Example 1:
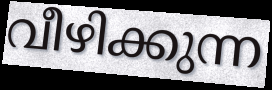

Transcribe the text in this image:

വീഴിക്കുന്ന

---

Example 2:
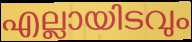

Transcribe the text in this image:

എല്ലായിടവും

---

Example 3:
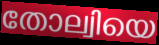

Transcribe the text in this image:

തോല്വിയെ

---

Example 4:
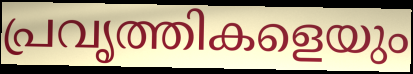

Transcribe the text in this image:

പ്രവൃത്തികളെയും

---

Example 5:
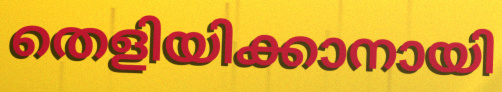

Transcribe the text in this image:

തെളിയിക്കാനായി